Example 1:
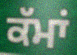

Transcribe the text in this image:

ਕੱਮਾਂ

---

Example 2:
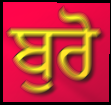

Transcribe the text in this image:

ਬੁਰੋ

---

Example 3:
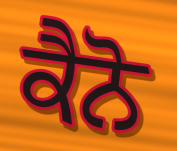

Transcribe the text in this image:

ਕੈਨੋ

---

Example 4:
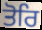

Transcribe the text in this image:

ਤੋਰਿ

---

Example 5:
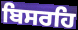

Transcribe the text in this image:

ਬਿਸਰਹਿ